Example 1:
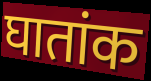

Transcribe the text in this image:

घातांक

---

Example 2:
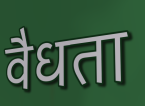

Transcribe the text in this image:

वैधता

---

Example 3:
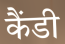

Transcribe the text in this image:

कैंडी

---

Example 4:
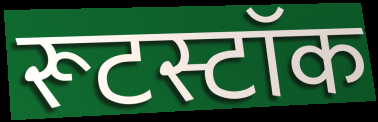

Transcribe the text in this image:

रूटस्टॉक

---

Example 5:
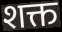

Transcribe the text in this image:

शक्त